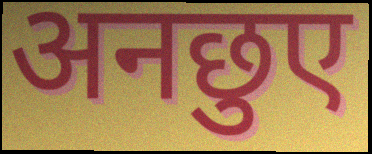
अनछुए